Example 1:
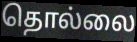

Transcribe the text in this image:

தொல்லை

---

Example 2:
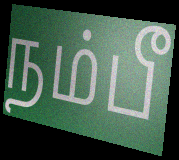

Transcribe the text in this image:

நம்பீ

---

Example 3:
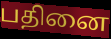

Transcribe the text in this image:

பதினை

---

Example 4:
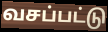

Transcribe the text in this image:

வசப்பட்டு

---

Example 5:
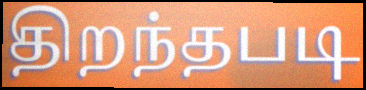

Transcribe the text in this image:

திறந்தபடி